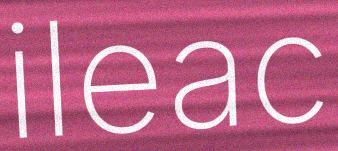
ileac